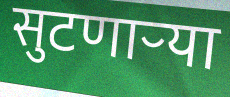
सुटणाऱ्या